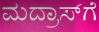
ಮದ್ರಾಸ್‍ಗೆ